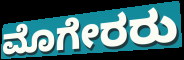
ಮೊಗೇರರು